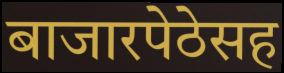
बाजारपेठेसह